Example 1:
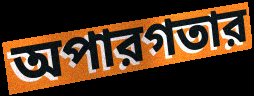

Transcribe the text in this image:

অপারগতার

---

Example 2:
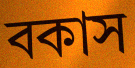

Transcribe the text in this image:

বকাস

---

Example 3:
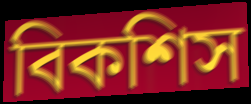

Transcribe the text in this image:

বিকশিস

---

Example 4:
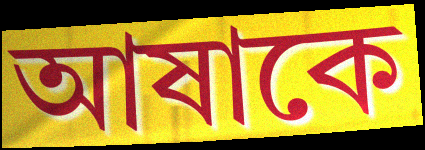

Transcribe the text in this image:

আষাকে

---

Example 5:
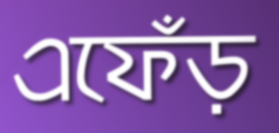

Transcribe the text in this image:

এফেঁড়